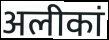
अलीकां